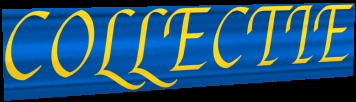
COLLECTIE